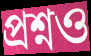
প্রশ্নও